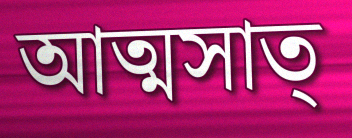
আত্মসাত্